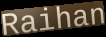
Raihan